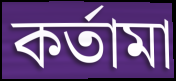
কর্তামা